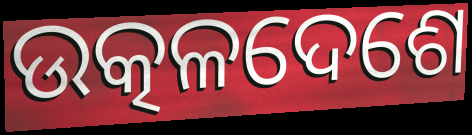
ଉତ୍କଳଦେଶେ